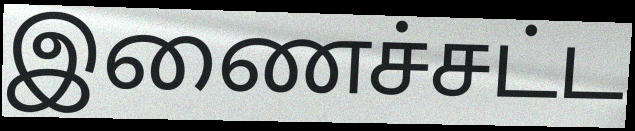
இணைச்சட்ட